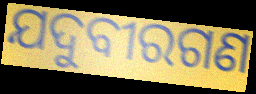
ଯଦୁବୀରଗଣ